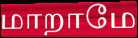
மாறாமே